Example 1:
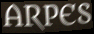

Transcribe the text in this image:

ARPES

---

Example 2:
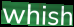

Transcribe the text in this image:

whish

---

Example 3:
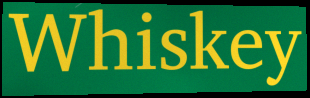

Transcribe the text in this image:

Whiskey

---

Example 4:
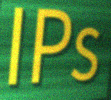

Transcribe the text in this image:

IPs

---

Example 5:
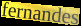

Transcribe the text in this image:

fernandes